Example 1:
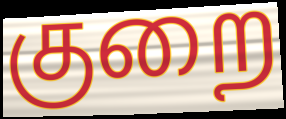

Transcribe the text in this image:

குறை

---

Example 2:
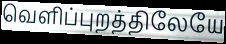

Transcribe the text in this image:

வெளிப்புறத்திலேயே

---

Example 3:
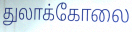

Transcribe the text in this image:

துலாக்கோலை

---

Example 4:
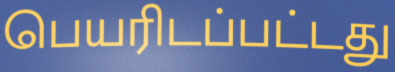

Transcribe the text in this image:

பெயரிடப்பட்டது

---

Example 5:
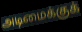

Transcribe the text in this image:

அடிமைக்குக்